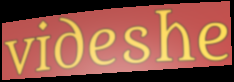
videshe